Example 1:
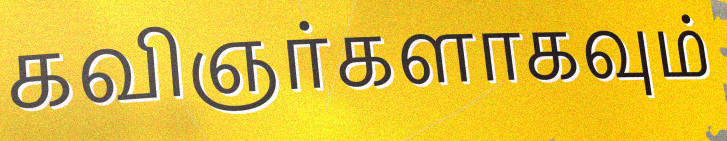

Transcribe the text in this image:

கவிஞர்களாகவும்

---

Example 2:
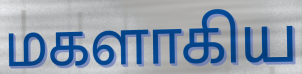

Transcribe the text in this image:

மகளாகிய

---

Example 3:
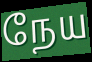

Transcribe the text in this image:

நேய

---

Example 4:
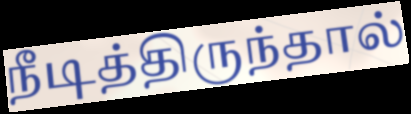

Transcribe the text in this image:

நீடித்திருந்தால்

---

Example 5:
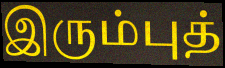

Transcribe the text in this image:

இரும்புத்